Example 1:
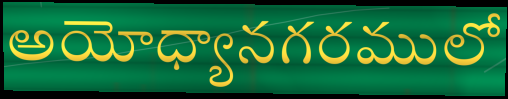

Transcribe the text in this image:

అయోధ్యానగరములో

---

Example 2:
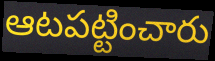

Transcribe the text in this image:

ఆటపట్టించారు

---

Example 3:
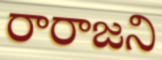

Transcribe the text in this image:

రారాజని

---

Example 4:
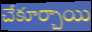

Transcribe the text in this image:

చేకూర్చాయి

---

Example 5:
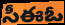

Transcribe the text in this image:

సీఈఓ